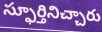
స్ఫూర్తినిచ్చారు